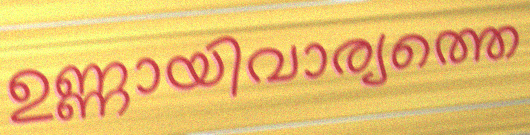
ഉണ്ണായിവാര്യത്തെ